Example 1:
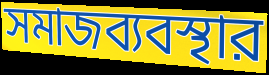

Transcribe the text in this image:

সমাজব্যবস্থার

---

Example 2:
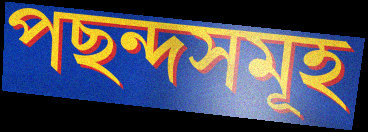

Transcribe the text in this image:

পছন্দসমূহ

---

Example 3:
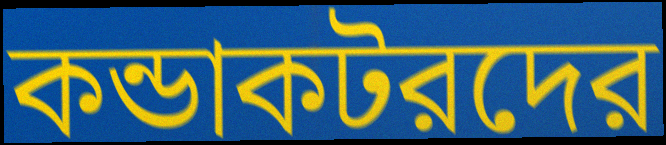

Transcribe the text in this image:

কন্ডাকটরদের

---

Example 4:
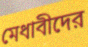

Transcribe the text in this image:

মেধাবীদের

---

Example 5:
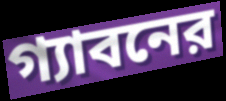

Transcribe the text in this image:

গ্যাবনের